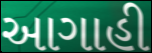
આગાહી